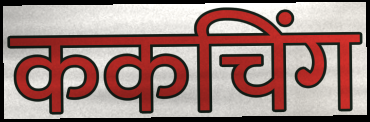
ककचिंग